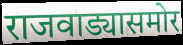
राजवाड्यासमोर